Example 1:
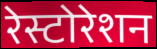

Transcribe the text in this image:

रेस्टोरेशन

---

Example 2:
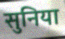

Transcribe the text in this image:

सुनिया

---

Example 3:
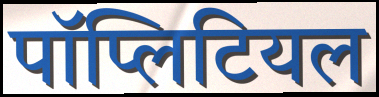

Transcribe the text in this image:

पॉप्लिटियल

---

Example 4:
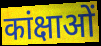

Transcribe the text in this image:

कांक्षाओं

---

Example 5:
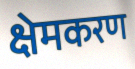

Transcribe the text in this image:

क्षेमकरण